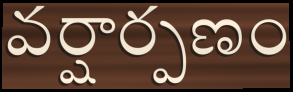
వర్షార్పణం